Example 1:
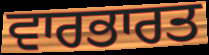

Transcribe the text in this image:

ਵਾਰਭਾਰਤ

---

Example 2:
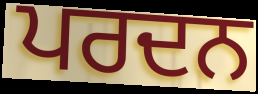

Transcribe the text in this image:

ਪਰਦਨ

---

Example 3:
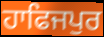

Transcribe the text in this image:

ਹਾਫਿਜਪੁਰ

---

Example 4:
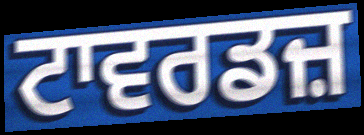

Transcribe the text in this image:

ਟਾਵਰਡਜ਼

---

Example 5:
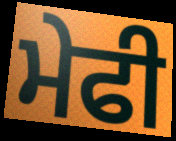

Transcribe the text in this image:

ਮੇਫੀ